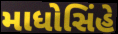
માધોસિંહે